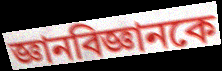
জ্ঞানবিজ্ঞানকে